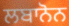
ਲਬਾਨੋਨ